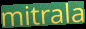
mitrala